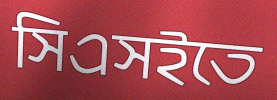
সিএসইতে